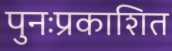
पुनःप्रकाशित